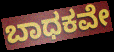
ಬಾಧಕವೇ